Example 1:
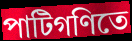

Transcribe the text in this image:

পাটিগণিতে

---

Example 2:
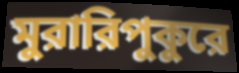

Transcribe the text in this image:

মুরারিপুকুরে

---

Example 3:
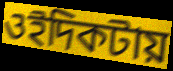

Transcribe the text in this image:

ওইদিকটায়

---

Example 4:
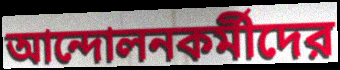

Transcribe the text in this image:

আন্দোলনকর্মীদের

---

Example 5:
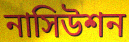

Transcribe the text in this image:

নাসিউশন